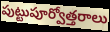
పుట్టుపూర్వోత్తరాలు